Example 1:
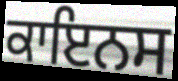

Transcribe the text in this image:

ਕਾਇਨਸ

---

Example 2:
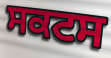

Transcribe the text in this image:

ਸਕਟਸ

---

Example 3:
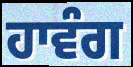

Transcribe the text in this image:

ਹਾਵੰਗ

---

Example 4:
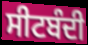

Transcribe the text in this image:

ਸੀਟਬੰਦੀ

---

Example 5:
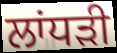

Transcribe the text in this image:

ਲਾਂਧੜੀ